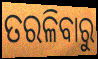
ତରଳିବାରୁ